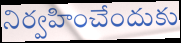
నిర్వహించేందుకు